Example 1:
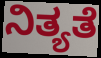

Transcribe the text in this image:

ನಿತ್ಯತೆ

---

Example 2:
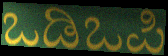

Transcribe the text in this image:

ಒಡಿಒಪಿ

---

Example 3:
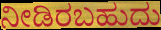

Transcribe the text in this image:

ನೀಡಿರಬಹುದು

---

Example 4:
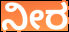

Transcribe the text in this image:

ನೀರ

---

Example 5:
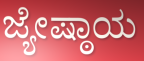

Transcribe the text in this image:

ಜ್ಯೇಷ್ಠಾಯ